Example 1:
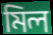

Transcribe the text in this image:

মিল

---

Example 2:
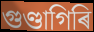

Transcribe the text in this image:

গুণ্ডাগিৰি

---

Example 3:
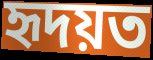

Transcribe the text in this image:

হৃদয়ত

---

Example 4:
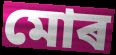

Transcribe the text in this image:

মোৰ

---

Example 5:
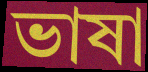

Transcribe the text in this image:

ভাষা